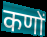
कणों